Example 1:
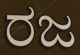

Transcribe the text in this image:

ರಜ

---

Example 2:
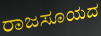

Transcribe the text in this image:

ರಾಜಸೂಯದ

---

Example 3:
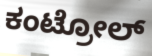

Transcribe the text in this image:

ಕಂಟ್ರೋಲ್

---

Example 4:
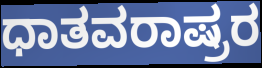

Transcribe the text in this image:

ಧಾತವರಾಷ್ರರ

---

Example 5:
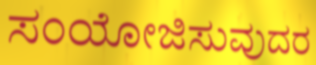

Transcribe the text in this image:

ಸಂಯೋಜಿಸುವುದರ